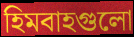
হিমবাহগুলো